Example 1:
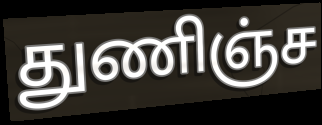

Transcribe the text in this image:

துணிஞ்ச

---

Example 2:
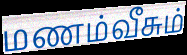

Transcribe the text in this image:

மணம்வீசும்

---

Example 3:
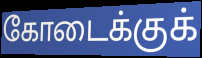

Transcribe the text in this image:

கோடைக்குக்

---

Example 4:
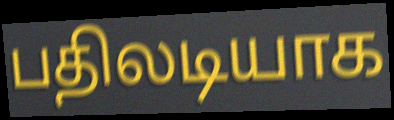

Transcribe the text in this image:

பதிலடியாக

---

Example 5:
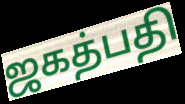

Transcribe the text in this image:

ஜகத்பதி